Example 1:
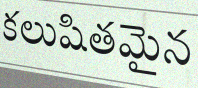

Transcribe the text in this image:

కలుషితమైన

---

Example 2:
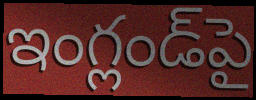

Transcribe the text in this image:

ఇంగ్లండ్‌పై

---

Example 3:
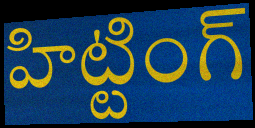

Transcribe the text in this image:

హిట్టింగ్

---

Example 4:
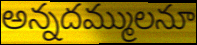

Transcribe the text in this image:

అన్నదమ్ములనూ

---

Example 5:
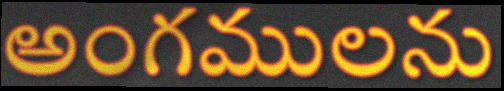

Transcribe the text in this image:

అంగములను